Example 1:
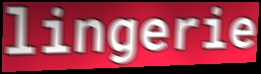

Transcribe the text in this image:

lingerie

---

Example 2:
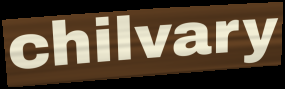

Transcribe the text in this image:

chilvary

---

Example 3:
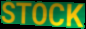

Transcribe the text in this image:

STOCK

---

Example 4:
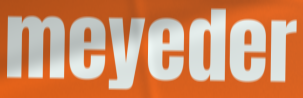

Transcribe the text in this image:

meyeder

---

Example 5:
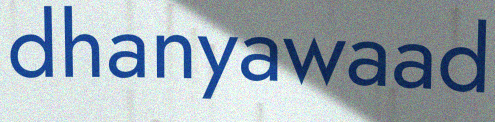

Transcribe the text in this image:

dhanyawaad